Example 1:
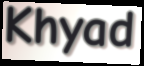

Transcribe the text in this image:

Khyad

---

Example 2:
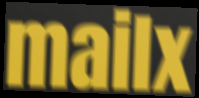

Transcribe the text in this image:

mailx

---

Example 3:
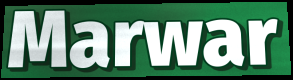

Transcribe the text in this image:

Marwar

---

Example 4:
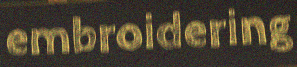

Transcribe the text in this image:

embroidering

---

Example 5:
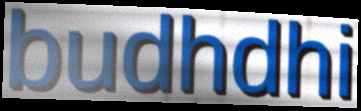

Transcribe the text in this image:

budhdhi